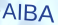
AIBA